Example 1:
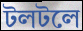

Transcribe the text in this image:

টলটলে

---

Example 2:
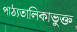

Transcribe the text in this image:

পাঠ্যতালিকাভুক্ত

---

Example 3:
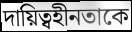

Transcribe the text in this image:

দায়িত্বহীনতাকে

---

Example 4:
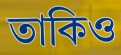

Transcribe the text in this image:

তাকিও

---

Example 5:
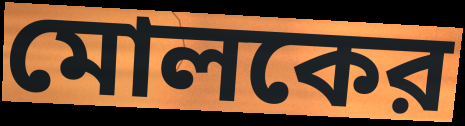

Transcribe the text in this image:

মোলকের